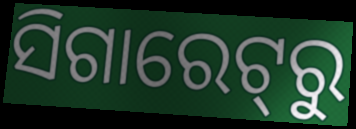
ସିଗାରେଟ୍‌ରୁ